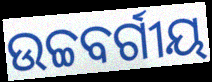
ଉଚ୍ଚବର୍ଗୀୟ